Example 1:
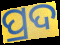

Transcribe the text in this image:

ପ୍ରଦ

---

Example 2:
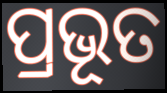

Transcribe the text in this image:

ପ୍ରଭୂତ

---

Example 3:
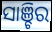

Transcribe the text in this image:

ସାଞ୍ଚିର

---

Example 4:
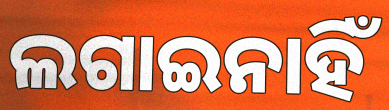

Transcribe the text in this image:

ଲଗାଇନାହିଁ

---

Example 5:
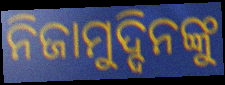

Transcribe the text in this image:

ନିଜାମୁଦ୍ଦିନଙ୍କୁ